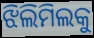
ଝିଲିମିଲକୁ